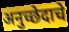
अनुच्छेदाचे